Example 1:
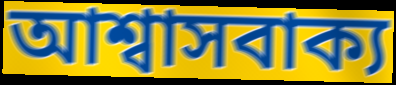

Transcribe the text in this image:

আশ্বাসবাক্য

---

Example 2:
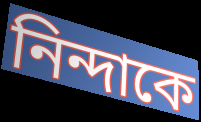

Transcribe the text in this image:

নিন্দাকে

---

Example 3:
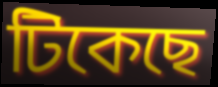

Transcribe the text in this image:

টিকেছে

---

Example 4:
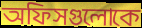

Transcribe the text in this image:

অফিসগুলোকে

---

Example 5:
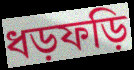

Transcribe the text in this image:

ধড়ফড়ি